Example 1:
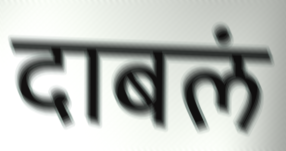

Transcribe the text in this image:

दाबलं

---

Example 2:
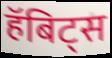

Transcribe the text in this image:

हॅबिट्स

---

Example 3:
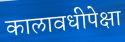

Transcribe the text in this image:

कालावधीपेक्षा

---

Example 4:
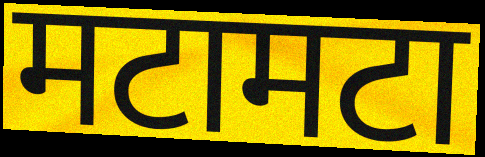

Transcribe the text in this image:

मटामटा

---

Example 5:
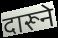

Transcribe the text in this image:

दारूने